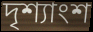
দৃশ্যাংশ